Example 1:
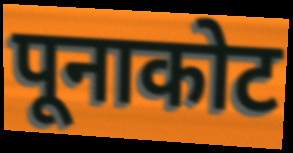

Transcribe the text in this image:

पूनाकोट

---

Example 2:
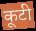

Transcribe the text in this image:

कूटी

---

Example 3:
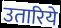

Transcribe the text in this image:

उतारिये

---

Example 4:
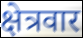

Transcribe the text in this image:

क्षेत्रवार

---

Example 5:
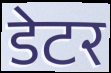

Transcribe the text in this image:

डेटर